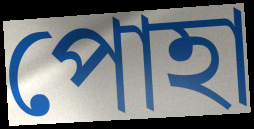
পোহা